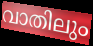
വാതിലും